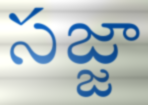
సజ్జా